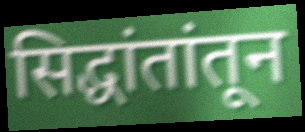
सिद्धांतांतून